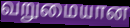
வறுமையான